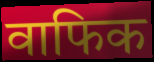
वाफिक